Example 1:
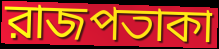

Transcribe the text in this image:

রাজপতাকা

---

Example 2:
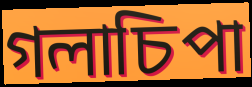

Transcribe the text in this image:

গলাচিপা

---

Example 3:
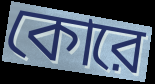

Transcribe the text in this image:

কোরে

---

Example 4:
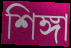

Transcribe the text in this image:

শিঙ্গা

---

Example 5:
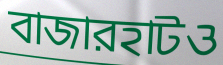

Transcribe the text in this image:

বাজারহাটও